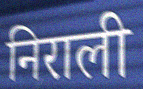
निराली